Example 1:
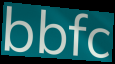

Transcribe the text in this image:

bbfc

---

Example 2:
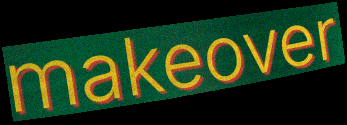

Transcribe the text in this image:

makeover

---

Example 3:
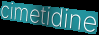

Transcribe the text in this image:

cimetidine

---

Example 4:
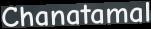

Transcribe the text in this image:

Chanatamal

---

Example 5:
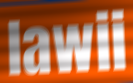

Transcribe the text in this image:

lawii